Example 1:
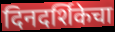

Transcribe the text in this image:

दिनदर्शिकेचा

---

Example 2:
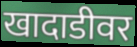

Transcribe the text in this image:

खादाडीवर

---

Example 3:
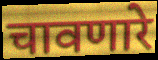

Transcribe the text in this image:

चावणारे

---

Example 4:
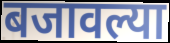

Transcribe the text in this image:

बजावल्या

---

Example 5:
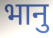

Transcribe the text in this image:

भानु